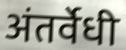
अंतर्वेधी